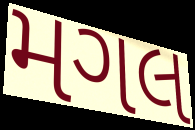
મગલ